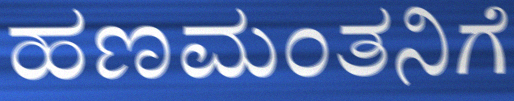
ಹಣಮಂತನಿಗೆ